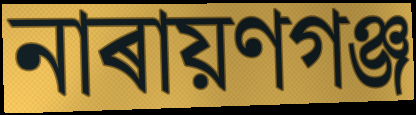
নাৰায়ণগঞ্জ